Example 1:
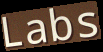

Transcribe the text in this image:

Labs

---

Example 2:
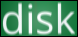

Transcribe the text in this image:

disk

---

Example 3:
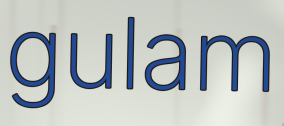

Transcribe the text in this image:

gulam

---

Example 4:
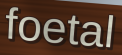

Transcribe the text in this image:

foetal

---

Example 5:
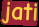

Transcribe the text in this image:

jati